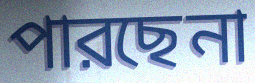
পারছেনা